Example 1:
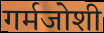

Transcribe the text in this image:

गर्मजोशी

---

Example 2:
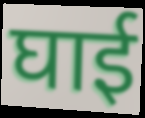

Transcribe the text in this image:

घाई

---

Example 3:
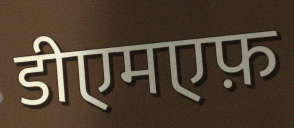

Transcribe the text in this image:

डीएमएफ़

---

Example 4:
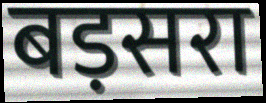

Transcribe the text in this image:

बड़सरा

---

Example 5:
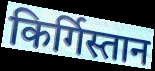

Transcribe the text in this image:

किर्गिस्तान